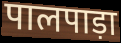
पालपाड़ा